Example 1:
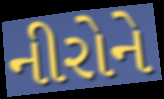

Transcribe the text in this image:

નીરોને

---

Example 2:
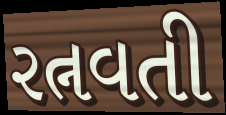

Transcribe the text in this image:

રત્નવતી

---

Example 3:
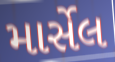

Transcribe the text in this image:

માર્સેલ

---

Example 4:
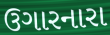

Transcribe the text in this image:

ઉગારનારા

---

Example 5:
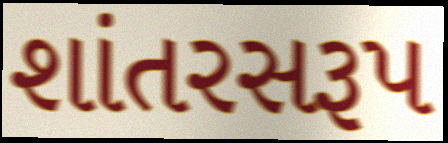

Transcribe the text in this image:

શાંતરસરૂપ